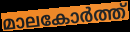
മാലകോർത്ത്